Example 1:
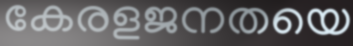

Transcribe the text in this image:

കേരളജനതയെ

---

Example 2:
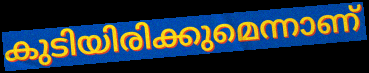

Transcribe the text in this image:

കുടിയിരിക്കുമെന്നാണ്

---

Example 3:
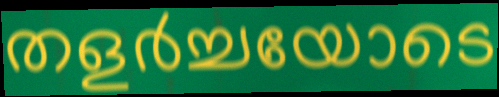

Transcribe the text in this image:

തളർച്ചയോടെ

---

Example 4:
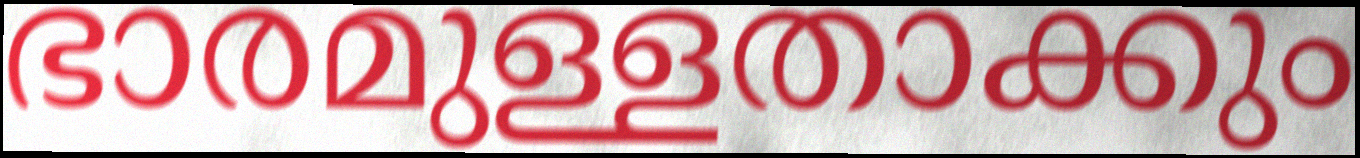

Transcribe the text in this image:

ഭാരമുള്ളതാക്കും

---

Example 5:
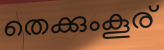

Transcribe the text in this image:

തെക്കുംകൂര്